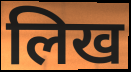
लिख